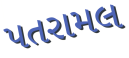
પતરામલ